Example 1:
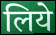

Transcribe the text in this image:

लिये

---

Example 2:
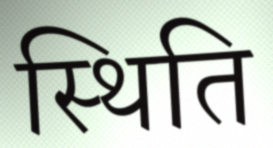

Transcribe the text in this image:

स्थिति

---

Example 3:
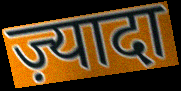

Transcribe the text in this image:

ज़्यादा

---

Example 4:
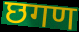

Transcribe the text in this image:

छगण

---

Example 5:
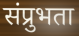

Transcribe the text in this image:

संप्रुभता